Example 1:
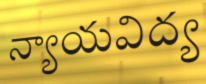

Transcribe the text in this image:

న్యాయవిద్య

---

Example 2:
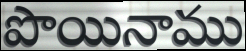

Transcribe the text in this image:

పొయినాము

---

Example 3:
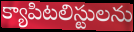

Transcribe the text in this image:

క్యాపిటలిస్టులను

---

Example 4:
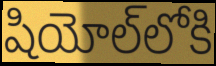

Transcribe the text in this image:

షియోల్‌లోకి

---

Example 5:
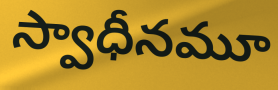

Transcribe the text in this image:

స్వాధీనమూ